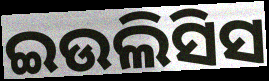
ଇଉଲିସିସ